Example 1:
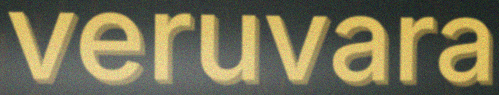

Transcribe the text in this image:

veruvara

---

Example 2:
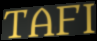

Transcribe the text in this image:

TAFI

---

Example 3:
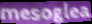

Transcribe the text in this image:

mesoglea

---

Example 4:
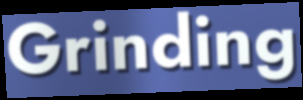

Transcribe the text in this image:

Grinding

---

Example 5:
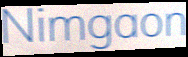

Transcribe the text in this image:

Nimgaon